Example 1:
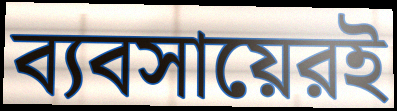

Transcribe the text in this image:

ব্যবসায়েরই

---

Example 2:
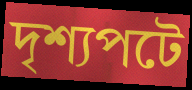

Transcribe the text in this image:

দৃশ্যপটে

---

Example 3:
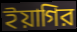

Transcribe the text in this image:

ইয়াগির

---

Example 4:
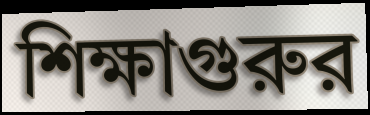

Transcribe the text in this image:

শিক্ষাগুরুর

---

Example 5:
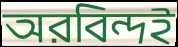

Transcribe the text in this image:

অরবিন্দই